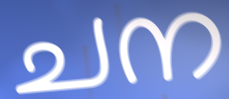
ചന